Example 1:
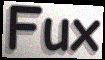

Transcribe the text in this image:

Fux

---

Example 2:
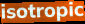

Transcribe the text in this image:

isotropic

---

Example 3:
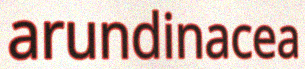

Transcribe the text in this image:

arundinacea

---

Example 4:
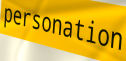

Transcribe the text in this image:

personation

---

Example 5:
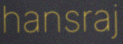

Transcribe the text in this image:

hansraj